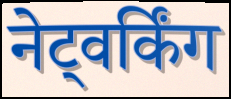
नेट्वर्किंग